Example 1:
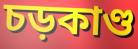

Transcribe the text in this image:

চড়কাণ্ড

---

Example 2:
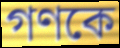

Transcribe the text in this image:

গণকে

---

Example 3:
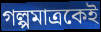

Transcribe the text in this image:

গল্পমাত্রকেই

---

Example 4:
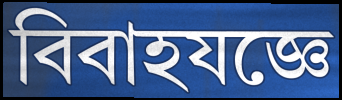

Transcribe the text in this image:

বিবাহযজ্ঞে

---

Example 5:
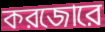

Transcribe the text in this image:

করজোরে